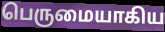
பெருமையாகிய